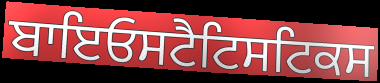
ਬਾਇਓਸਟੈਟਿਸਟਿਕਸ